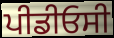
ਪੀਡੀਓਸੀ